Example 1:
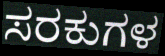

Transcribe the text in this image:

ಸರಕುಗಳ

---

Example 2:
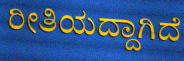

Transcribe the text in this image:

ರೀತಿಯದ್ದಾಗಿದೆ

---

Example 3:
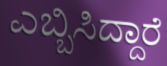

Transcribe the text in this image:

ಎಬ್ಬಿಸಿದ್ದಾರೆ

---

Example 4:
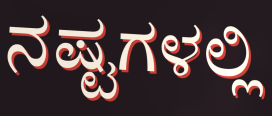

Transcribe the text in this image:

ನಷ್ಟಗಳಲ್ಲಿ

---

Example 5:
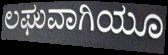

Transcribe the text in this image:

ಲಘುವಾಗಿಯೂ